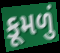
કૂમળું